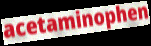
acetaminophen